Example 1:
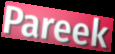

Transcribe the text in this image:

Pareek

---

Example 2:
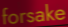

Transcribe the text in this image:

forsake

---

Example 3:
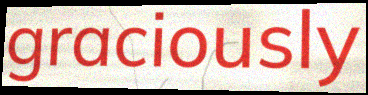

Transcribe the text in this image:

graciously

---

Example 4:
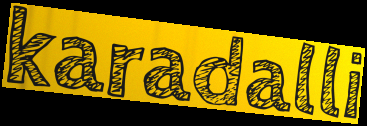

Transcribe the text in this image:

karadalli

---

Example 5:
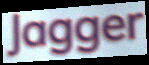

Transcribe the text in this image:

Jagger